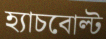
হ্যাচবোল্ট